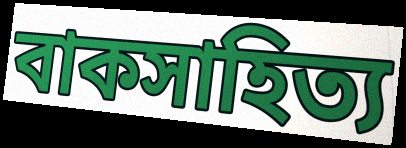
বাকসাহিত্য